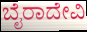
ಬೈರಾದೇವಿ